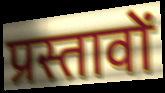
प्रस्तावों